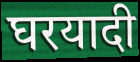
घरयादी